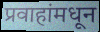
प्रवाहांमधून